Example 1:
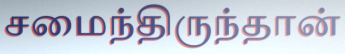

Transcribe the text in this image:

சமைந்திருந்தான்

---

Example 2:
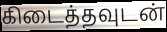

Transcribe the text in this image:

கிடைத்தவுடன்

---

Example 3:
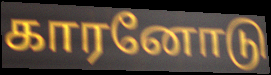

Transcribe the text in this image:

காரனோடு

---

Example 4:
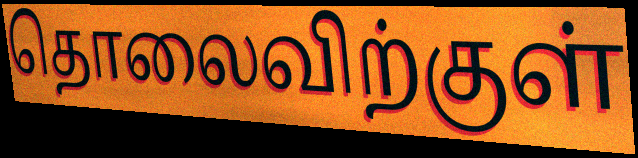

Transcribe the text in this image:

தொலைவிற்குள்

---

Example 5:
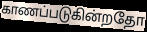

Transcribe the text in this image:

காணப்படுகின்றதோ